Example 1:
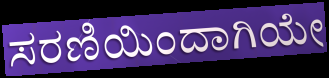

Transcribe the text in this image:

ಸರಣಿಯಿಂದಾಗಿಯೇ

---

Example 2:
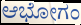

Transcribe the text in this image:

ಆಭೋಗಂ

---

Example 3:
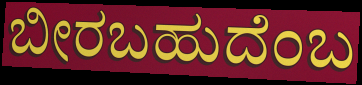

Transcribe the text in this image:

ಬೀರಬಹುದೆಂಬ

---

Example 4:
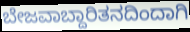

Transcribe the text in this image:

ಬೇಜವಾಬ್ದಾರಿತನದಿಂದಾಗಿ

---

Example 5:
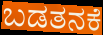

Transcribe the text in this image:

ಬಡತನಕೆ